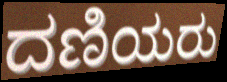
ದಣಿಯರು